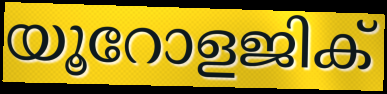
യൂറോളജിക്